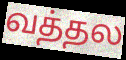
வத்தல